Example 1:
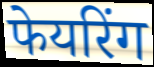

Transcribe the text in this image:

फेयरिंग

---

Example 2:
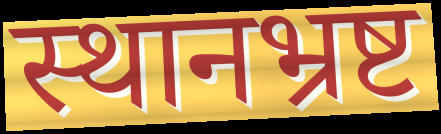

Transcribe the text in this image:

स्थानभ्रष्ट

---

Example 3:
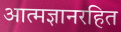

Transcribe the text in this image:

आत्मज्ञानरहित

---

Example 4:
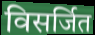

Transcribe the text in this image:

विसर्जित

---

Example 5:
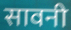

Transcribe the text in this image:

सावनी